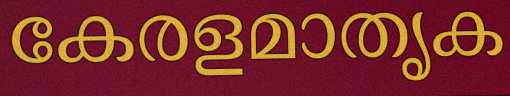
കേരളമാതൃക